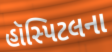
હૉસ્પિટલના